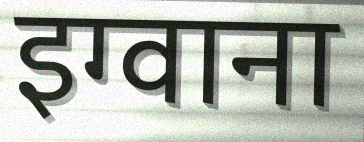
इग्वाना